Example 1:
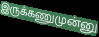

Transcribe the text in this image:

இருக்கணுமுன்னு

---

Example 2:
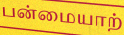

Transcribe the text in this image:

பன்மையாற்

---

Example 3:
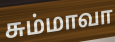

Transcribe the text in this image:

சும்மாவா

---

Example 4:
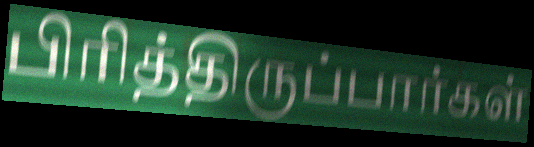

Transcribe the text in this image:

பிரித்திருப்பார்கள்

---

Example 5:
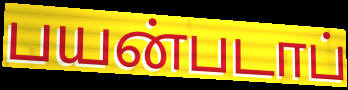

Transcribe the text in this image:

பயன்படாப்